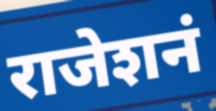
राजेशनं